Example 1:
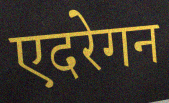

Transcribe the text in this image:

एदरेगन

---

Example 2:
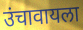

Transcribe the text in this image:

उंचावायला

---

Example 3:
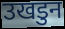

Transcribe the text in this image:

उखडुन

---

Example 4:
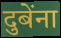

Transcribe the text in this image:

दुबेंना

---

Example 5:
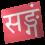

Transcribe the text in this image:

सङ्गं